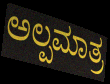
ಅಲ್ಪಮಾತ್ರ